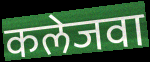
कलेजवा